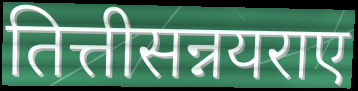
तित्तीसन्नयराए